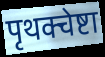
पृथक्चेष्टा